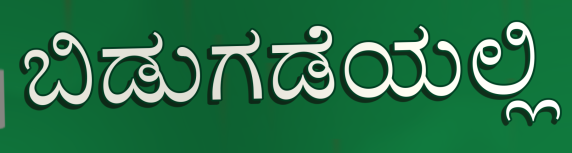
ಬಿಡುಗಡೆಯಲ್ಲಿ